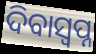
ଦିବାସ୍ଵପ୍ନ